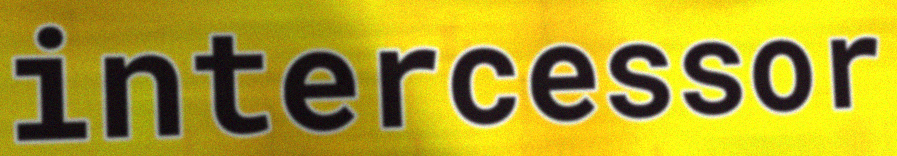
intercessor